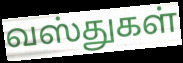
வஸ்துகள்